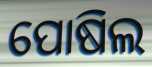
ପୋଷିଲ